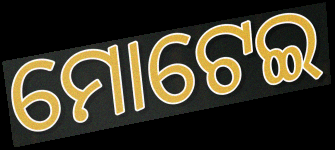
ମୋଟେଇ